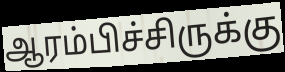
ஆரம்பிச்சிருக்கு